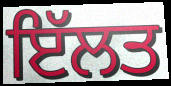
ਇੱਲਤ